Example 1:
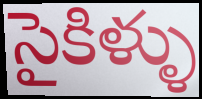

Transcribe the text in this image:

సైకిళ్ళు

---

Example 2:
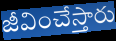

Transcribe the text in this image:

జీవించేస్తారు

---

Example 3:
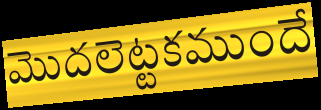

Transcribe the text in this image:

మొదలెట్టకముందే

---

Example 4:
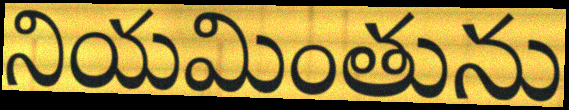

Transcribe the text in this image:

నియమింతును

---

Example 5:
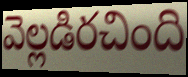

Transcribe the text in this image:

వెల్లడిరచింది